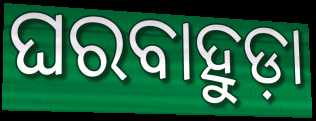
ଘରବାହୁଡ଼ା